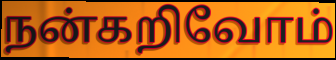
நன்கறிவோம்